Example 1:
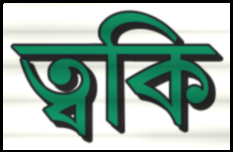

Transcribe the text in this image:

ত্বকি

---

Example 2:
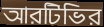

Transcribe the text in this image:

আরটিভির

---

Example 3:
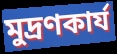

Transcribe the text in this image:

মুদ্রণকার্য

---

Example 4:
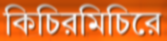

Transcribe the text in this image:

কিচিরমিচিরে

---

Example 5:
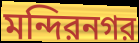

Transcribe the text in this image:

মন্দিরনগর